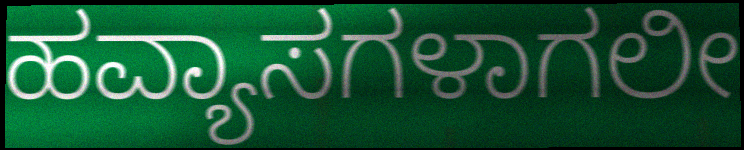
ಹವ್ಯಾಸಗಳಾಗಲೀ